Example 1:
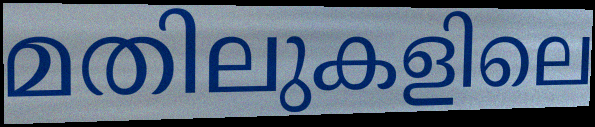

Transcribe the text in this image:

മതിലുകളിലെ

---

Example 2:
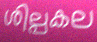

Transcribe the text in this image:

ശില്പകല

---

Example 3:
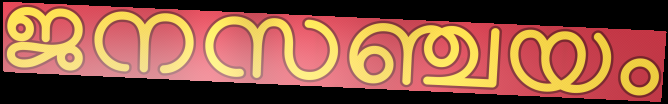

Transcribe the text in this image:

ജനസഞ്ചയം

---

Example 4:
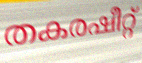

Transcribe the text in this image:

തകരഷീറ്റ്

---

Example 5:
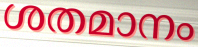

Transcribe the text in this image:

ശതമാനം